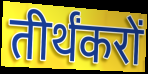
तीर्थंकरों